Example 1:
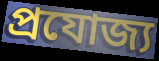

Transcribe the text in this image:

প্রযোজ্য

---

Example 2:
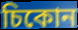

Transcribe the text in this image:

চিকোন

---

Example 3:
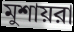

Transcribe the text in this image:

মুশায়রা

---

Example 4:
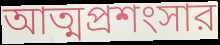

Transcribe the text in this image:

আত্মপ্রশংসার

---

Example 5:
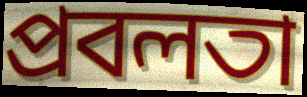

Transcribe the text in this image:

প্রবলতা